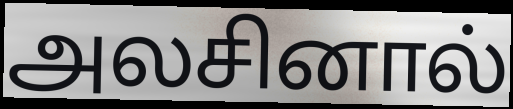
அலசினால்